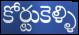
కోర్టుకెళ్ళి